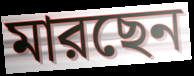
মারছেন